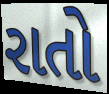
રાતો